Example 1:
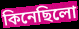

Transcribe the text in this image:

কিনেছিলো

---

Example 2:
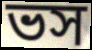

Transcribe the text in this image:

ভস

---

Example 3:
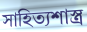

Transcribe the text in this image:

সাহিত্যশাস্ত্র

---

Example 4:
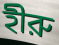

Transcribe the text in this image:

হীরু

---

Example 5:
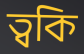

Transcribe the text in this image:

ত্বকি